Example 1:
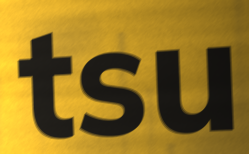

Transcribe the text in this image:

tsu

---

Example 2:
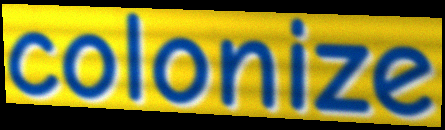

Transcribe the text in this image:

colonize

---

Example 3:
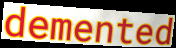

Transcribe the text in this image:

demented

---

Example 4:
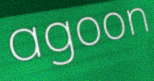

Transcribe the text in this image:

agoon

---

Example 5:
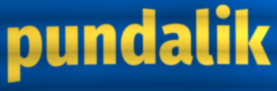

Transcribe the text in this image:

pundalik